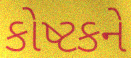
કોષ્ટકને